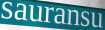
sauransu